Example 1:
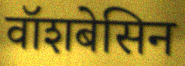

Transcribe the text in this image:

वॉशबेसिन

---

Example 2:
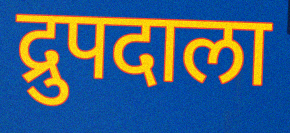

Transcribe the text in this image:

द्रुपदाला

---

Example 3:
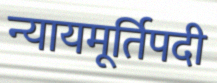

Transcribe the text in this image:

न्यायमूर्तिपदी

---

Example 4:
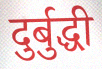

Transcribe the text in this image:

दुर्बुद्धी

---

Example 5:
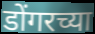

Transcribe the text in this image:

डोंगरच्या